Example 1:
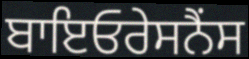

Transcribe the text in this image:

ਬਾਇਓਰੇਸਨੈਂਸ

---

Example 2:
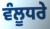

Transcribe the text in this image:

ਵੰਲੂਧਰੇ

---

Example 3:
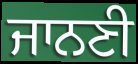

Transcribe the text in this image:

ਜਾਨਣੀ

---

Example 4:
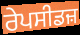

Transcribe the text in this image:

ਰੇਪਸੀਡਜ਼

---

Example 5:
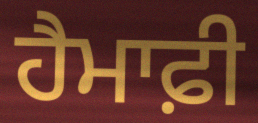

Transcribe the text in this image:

ਹੈਮਾਫ਼ੀ